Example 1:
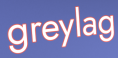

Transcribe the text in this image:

greylag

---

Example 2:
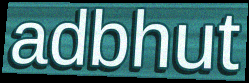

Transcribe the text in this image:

adbhut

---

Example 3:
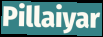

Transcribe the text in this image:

Pillaiyar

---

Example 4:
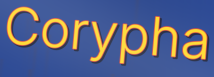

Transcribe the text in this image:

Corypha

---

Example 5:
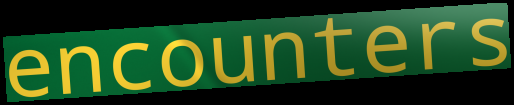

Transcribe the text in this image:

encounters